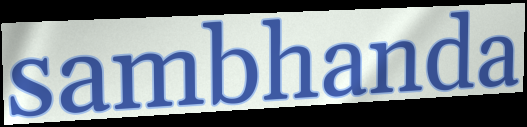
sambhanda